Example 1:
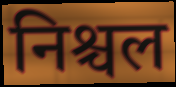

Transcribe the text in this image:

निश्चल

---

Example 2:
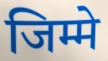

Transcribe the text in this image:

जिम्मे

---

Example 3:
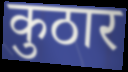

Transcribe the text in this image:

कुठार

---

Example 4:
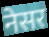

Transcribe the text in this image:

नेसर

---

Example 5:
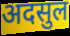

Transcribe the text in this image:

अदसुल